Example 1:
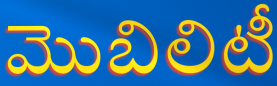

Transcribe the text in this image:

మొబిలిటీ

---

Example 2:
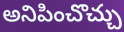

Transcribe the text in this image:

అనిపించొచ్చు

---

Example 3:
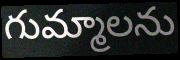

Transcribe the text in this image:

గుమ్మాలను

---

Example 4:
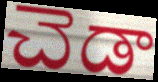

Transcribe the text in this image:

చెడా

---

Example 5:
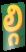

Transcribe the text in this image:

ల్గి